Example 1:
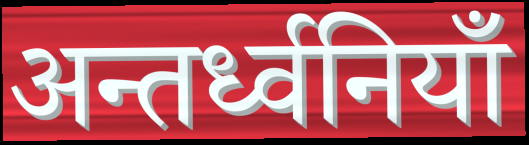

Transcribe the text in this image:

अन्तर्ध्वनियाँ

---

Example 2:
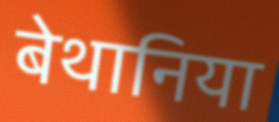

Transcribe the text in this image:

बेथानिया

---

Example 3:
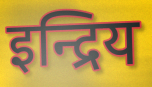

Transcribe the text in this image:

इन्द्रिय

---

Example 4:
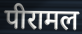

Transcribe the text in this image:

पीरामल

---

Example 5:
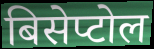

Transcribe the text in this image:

बिसेप्टोल